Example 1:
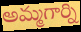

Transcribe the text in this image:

అమ్మగార్ని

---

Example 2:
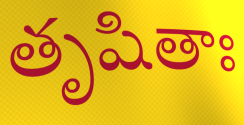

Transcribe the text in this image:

తృషితాః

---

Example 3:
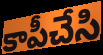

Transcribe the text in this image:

కాపీచేసి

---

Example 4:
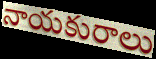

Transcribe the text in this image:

నాయకురాలు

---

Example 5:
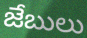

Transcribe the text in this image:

జేబులు